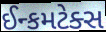
ઈન્કમટેક્સ